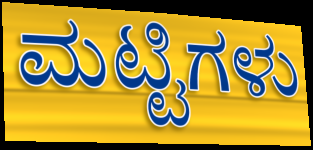
ಮಟ್ಟಿಗಳು